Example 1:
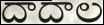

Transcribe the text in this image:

దాదాల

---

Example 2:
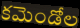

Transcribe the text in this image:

కమెండోల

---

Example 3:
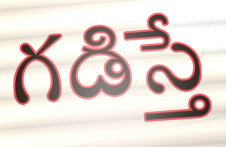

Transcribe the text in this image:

గడిస్తే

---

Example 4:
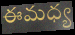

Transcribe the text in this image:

ఈమధ్య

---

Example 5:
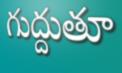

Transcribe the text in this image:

గుద్దుతూ